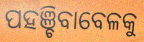
ପହଞ୍ଚିବାବେଳକୁ